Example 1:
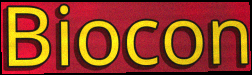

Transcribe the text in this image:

Biocon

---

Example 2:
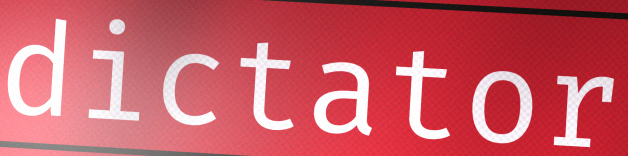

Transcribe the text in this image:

dictator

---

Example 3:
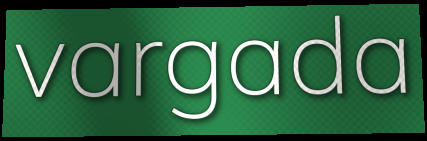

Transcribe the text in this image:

vargada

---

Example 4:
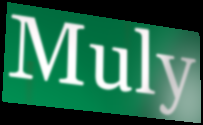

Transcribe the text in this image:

Muly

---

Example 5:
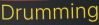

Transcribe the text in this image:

Drumming